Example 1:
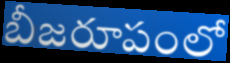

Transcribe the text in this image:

బీజరూపంలో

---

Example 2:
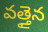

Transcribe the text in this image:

వత్తైన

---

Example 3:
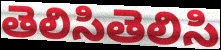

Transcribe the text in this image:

తెలిసితెలిసి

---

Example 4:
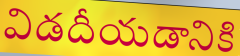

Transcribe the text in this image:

విడదీయడానికి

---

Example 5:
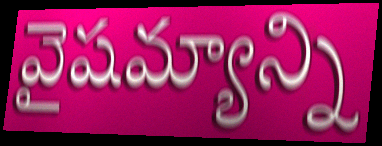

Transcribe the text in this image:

వైషమ్యాన్ని